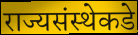
राज्यसंस्थेकडे